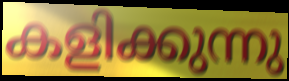
കളിക്കുന്നു